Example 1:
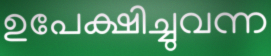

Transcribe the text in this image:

ഉപേക്ഷിച്ചുവന്ന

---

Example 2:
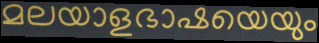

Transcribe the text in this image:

മലയാളഭാഷയെയും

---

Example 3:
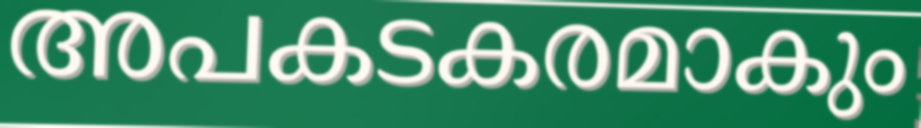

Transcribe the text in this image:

അപകടകരമാകും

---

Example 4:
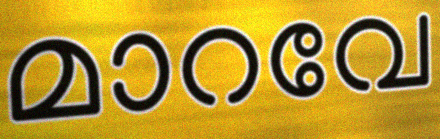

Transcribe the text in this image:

മാറവേ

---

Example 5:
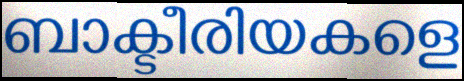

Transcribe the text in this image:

ബാക്ടീരിയകളെ